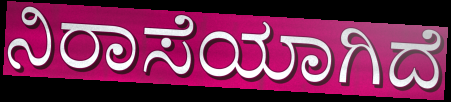
ನಿರಾಸೆಯಾಗಿದೆ